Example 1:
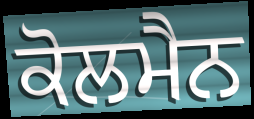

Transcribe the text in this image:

ਕੋਲਮੈਨ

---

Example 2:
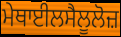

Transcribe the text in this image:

ਮੇਥਾਈਲਸੈਲੂਲੋਜ਼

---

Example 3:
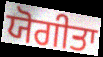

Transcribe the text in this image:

ਯੋਗੀਤਾ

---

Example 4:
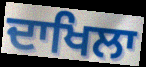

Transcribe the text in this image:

ਦਾਖਿਲਾ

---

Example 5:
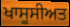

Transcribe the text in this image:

ਖਾਸੂਸੀਅਤ